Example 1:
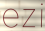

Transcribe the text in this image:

ezi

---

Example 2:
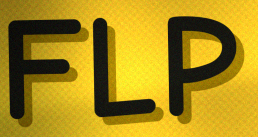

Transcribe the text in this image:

FLP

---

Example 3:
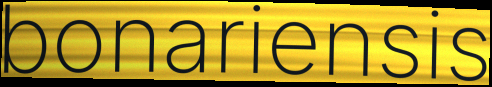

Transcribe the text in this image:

bonariensis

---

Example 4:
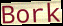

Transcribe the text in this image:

Bork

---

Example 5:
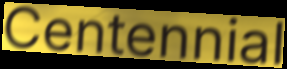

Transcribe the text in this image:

Centennial